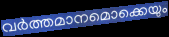
വർത്തമാനമൊക്കെയും